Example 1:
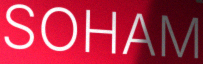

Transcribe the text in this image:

SOHAM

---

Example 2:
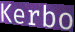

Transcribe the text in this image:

Kerbo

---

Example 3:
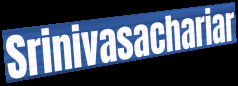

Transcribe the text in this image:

Srinivasachariar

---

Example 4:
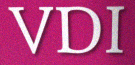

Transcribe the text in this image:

VDI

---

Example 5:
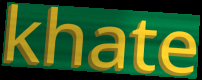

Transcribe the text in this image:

khate